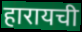
हारायची